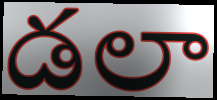
డలా